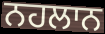
ਨਹਲਾਨ